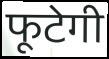
फूटेगी